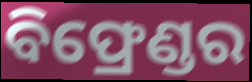
ବିଫ୍ରେଣ୍ଡର